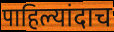
पाहिल्यांदाच